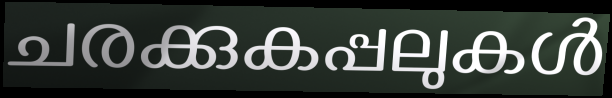
ചരക്കുകപ്പലുകൾ